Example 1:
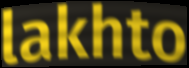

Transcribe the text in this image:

lakhto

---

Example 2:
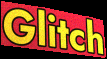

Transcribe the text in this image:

Glitch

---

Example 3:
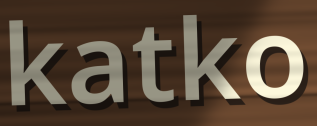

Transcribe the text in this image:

katko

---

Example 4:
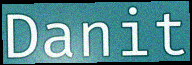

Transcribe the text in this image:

Danit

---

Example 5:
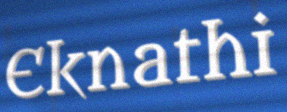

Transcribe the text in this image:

Eknathi